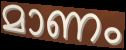
മാണം